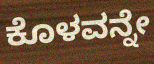
ಕೊಳವನ್ನೇ